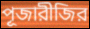
পূজারীজির